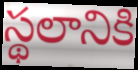
స్థలానికి